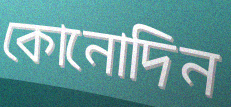
কোনোদিন